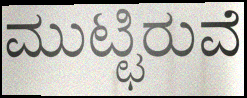
ಮುಟ್ಟಿರುವೆ